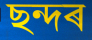
ছন্দৰ